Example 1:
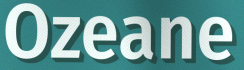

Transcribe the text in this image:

Ozeane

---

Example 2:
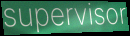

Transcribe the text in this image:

supervisor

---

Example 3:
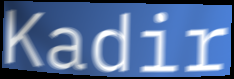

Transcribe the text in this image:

Kadir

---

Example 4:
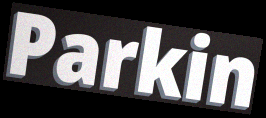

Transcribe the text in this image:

Parkin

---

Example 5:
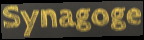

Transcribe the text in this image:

Synagoge